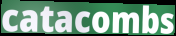
catacombs